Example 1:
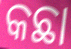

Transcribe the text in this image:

କଛା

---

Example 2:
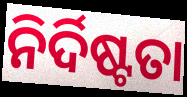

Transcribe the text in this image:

ନିର୍ଦିଷ୍ଟତା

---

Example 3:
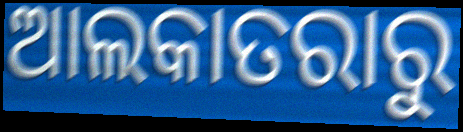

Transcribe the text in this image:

ଆଲକାତରାରୁ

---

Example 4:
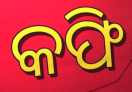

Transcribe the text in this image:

କଫି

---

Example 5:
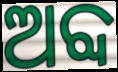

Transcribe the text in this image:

ଅବ୍ଦ